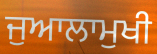
ਜੁਆਲਾਮੁਖੀ